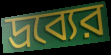
দ্রব্যের